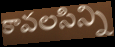
కావలసిన్ని